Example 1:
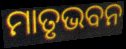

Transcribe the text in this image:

ମାତୃଭବନ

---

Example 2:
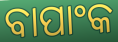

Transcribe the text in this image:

ବାପାଂକ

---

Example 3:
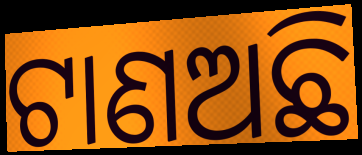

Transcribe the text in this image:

ଟାଣଅଛି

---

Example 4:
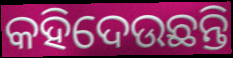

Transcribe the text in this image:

କହିଦେଉଛନ୍ତି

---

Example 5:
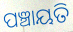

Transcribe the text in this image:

ପଞ୍ଚାୟତି